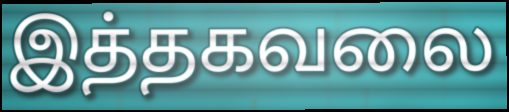
இத்தகவலை